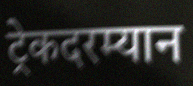
ट्रेकदरम्यान